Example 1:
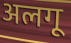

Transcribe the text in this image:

अलगू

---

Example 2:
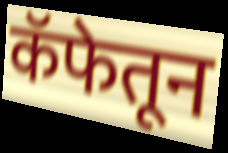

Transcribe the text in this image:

कॅफेतून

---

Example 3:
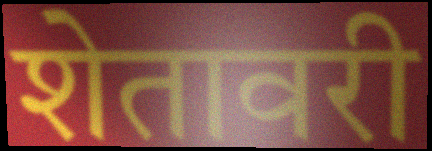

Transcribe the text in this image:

शेतावरी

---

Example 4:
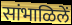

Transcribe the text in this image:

सांभाळिलें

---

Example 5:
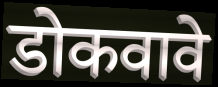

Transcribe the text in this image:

डोकवावे